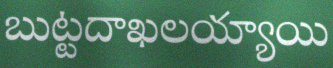
బుట్టదాఖలయ్యాయి